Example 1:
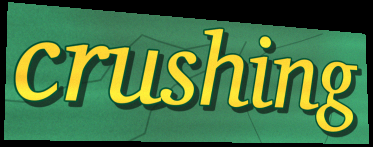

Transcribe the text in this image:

crushing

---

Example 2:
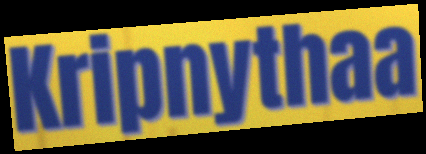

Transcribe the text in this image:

Kripnythaa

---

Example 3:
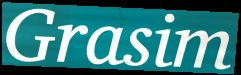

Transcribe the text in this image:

Grasim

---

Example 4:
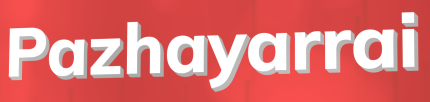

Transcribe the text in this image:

Pazhayarrai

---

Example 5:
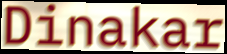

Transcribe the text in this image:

Dinakar